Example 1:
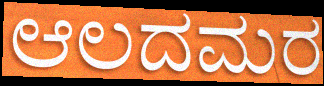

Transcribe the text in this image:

ಆಲದಮರ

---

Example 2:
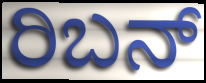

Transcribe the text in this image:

ರಿಬನ್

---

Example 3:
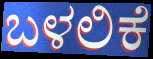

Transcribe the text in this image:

ಬಳಲಿಕೆ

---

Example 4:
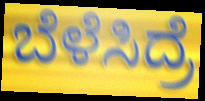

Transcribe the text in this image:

ಬೆಳೆಸಿದ್ರೆ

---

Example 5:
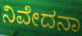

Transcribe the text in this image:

ನಿವೇದನಾ